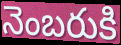
నెంబరుకి